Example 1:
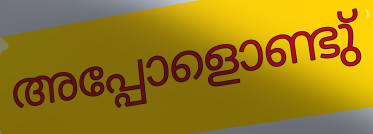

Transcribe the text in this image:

അപ്പോളൊണ്ടു്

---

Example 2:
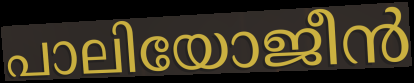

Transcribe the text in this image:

പാലിയോജീൻ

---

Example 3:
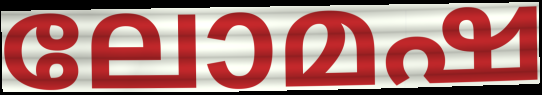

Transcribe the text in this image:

ലോമഷ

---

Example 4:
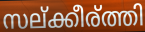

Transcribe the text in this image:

സല്ക്കീര്ത്തി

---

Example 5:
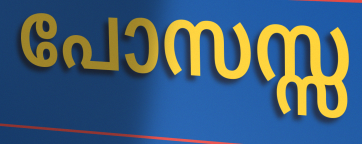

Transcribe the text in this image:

പോസസ്സ